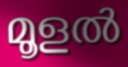
മൂളൽ